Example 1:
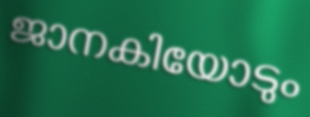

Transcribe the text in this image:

ജാനകിയോടും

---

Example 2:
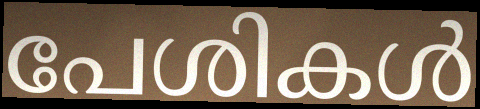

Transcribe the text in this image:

പേശികൾ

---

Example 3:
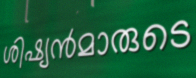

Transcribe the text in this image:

ശിഷ്യൻമാരുടെ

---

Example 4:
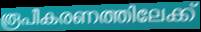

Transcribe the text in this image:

രൂപീകരണത്തിലേക്ക്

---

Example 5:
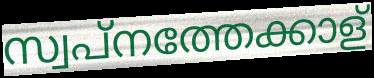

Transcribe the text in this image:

സ്വപ്നത്തേക്കാള്